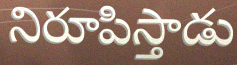
నిరూపిస్తాడు